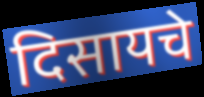
दिसायचे